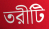
তরীটি